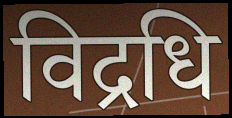
विद्रधि